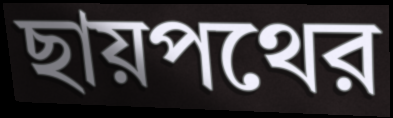
ছায়পথের